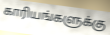
காரியங்களுக்கு